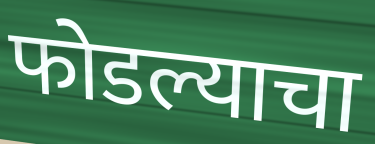
फोडल्याचा